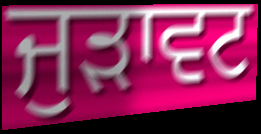
ਜੁੜਾਵਟ